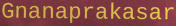
Gnanaprakasar